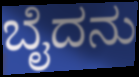
ಬೈದನು